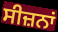
ਸੀਜ਼ਨਾਂ